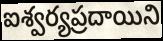
ఐశ్వర్యప్రదాయిని